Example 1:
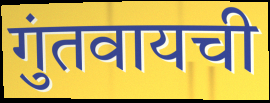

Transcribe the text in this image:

गुंतवायची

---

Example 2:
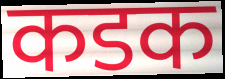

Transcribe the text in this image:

कडक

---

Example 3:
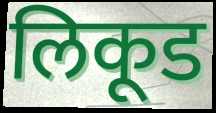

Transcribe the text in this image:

लिकूड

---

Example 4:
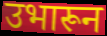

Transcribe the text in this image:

उभारून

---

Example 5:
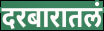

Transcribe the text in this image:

दरबारातलं